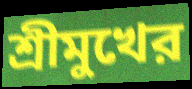
শ্রীমুখের